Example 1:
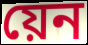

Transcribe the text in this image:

য়েন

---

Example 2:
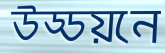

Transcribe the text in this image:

উড্ডয়নে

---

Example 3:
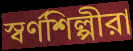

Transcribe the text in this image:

স্বর্ণশিল্পীরা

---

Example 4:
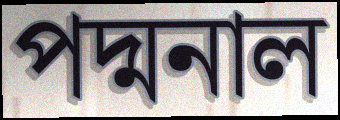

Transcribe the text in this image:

পদ্মনাল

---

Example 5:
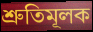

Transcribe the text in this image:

শ্রুতিমূলক